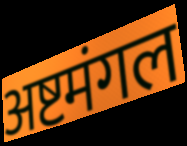
अष्टमंगल